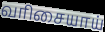
வரிசையாய்